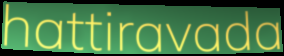
hattiravada